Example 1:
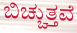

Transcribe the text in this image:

ಬಿಚ್ಚುತ್ತವೆ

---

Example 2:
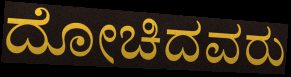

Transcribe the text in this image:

ದೋಚಿದವರು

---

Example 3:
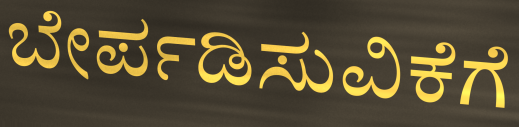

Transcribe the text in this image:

ಬೇರ್ಪಡಿಸುವಿಕೆಗೆ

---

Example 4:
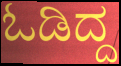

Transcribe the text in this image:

ಓಡಿದ್ದ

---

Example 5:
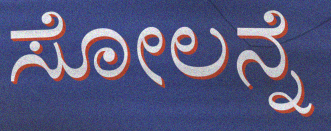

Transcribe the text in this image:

ಸೋಲನ್ನೆ